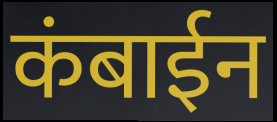
कंबाईन